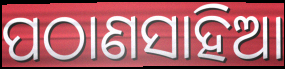
ପଠାଣସାହିଆ